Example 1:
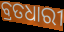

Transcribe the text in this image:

ବ୍ରତଧାରୀ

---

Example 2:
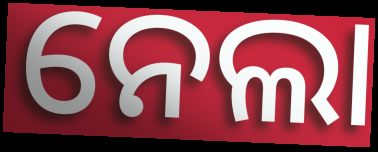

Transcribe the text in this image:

ନେଲା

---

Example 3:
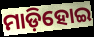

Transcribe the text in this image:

ମାଡ଼ିହୋଇ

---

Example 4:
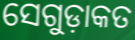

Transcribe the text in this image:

ସେଗୁଡ଼ାକତ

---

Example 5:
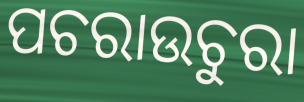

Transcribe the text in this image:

ପଚରାଉଚୁରା